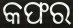
କଫର